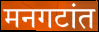
मनगटांत